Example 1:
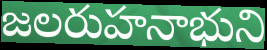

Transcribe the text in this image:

జలరుహనాభుని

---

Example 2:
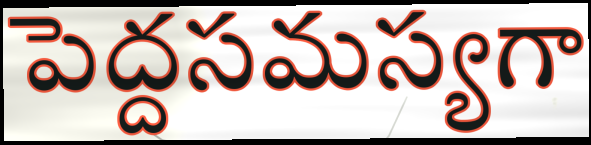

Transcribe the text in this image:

పెద్దసమస్యగా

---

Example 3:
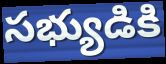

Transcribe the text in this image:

సభ్యుడికి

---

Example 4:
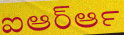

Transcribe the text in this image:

ఐఆర్ఆర్‍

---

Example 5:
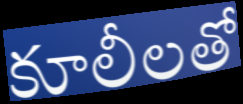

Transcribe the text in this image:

కూలీలతో